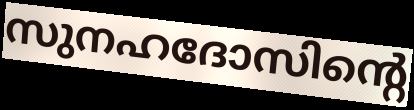
സുനഹദോസിന്റെ